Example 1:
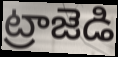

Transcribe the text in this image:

ట్రాజెడి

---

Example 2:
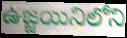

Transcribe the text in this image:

ఉజ్జయినిలోని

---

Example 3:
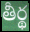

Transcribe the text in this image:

తీర్థ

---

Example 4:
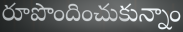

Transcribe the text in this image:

రూపొందించుకున్నాం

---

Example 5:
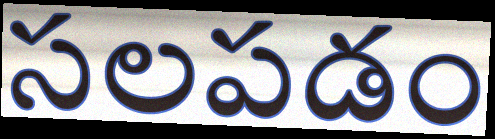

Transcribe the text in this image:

సలపడం